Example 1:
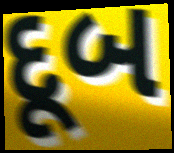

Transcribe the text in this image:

દૂબ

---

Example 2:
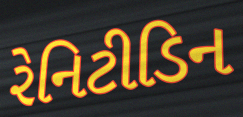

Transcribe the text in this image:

રેનિટીડિન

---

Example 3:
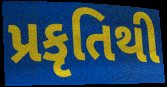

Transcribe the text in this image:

પ્રકૃતિથી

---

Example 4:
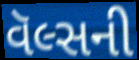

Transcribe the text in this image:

વૅલ્સની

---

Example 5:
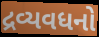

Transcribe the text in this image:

દ્રવ્યવધનો